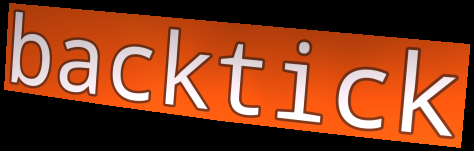
backtick